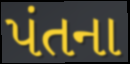
પંતના